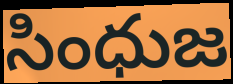
సింధుజ